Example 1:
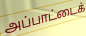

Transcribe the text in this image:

அப்பாட்டைக்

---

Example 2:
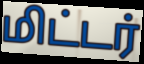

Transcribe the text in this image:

மிட்டர்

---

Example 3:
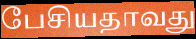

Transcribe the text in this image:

பேசியதாவது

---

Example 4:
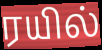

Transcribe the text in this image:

ரயில்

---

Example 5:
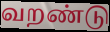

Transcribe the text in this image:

வறண்டு